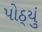
પોઠ્યું